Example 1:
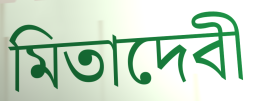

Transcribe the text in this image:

মিতাদেবী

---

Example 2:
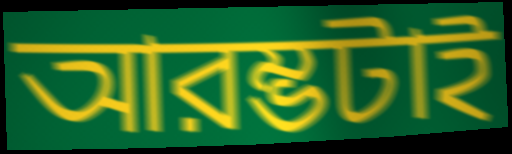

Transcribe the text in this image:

আরম্ভটাই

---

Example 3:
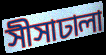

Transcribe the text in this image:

সীসাঢালা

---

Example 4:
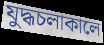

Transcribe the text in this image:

যুদ্ধচলাকালে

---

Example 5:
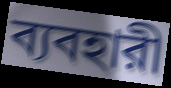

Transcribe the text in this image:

ব্যবহারী